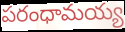
పరంధామయ్య